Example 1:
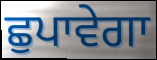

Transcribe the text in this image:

ਛੁਪਾਵੇਗਾ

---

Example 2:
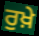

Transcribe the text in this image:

ਰੁਖ਼ੇ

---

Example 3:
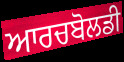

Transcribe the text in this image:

ਆਰਚਬੋਲਡੀ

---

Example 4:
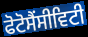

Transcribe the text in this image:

ਫੋਟੋਸੈਂਸੀਵਿਟੀ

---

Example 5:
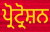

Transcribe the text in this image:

ਪ੍ਰੋਟ੍ਰੋਸ਼ਨ